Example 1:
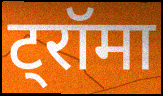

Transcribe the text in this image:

ट्रॉमा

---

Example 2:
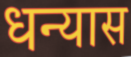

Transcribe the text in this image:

धन्यास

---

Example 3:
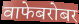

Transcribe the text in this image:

वाफेबरोबर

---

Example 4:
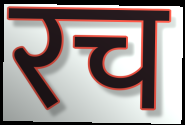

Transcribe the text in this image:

रच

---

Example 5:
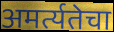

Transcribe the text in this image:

अमर्त्यतेचा